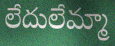
లేదులేమ్మా